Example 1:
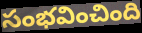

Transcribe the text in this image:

సంభవించింది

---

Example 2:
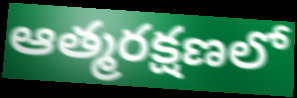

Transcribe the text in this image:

ఆత్మరక్షణలో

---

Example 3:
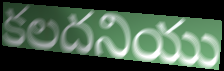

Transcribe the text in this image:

కలదనియు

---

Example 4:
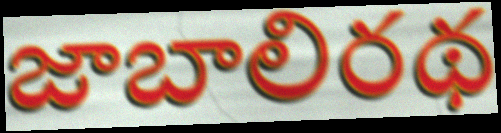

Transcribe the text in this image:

జాబాలిరథ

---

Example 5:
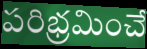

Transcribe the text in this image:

పరిభ్రమించే